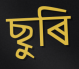
ছুৰি